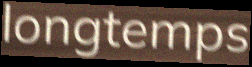
longtemps